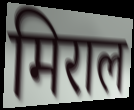
मिराल